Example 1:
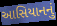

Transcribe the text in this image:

આસિયાનનું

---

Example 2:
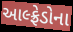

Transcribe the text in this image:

આલ્ફ્રેડોના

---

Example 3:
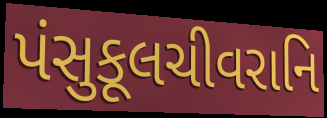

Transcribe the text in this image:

પંસુકૂલચીવરાનિ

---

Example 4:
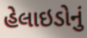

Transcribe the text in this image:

હેલાઇડોનું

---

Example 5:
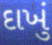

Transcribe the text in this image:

દાખું